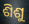
ଶିଶୁ